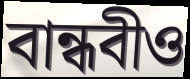
বান্ধবীও